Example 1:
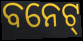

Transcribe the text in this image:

ବନେଟ୍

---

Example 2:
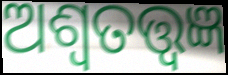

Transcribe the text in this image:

ଅଶ୍ୱତତ୍ତ୍ୱଜ୍ଞ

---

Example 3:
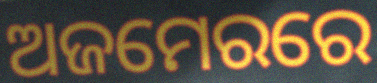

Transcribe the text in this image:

ଅଜମେରରେ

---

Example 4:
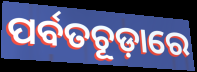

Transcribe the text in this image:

ପର୍ବତଚୂଡ଼ାରେ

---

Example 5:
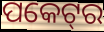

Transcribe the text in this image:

ପକେଟ୍‌ର